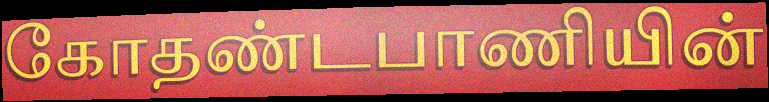
கோதண்டபாணியின்